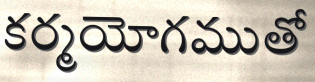
కర్మయోగముతో